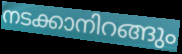
നടക്കാനിറങ്ങും